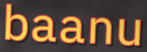
baanu